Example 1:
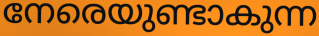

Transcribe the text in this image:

നേരെയുണ്ടാകുന്ന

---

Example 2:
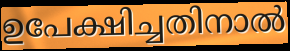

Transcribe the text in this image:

ഉപേക്ഷിച്ചതിനാൽ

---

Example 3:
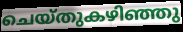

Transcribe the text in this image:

ചെയ്തുകഴിഞ്ഞു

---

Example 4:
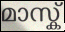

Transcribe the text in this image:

മാസ്ക്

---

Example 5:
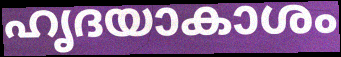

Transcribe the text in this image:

ഹൃദയാകാശം